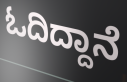
ಓದಿದ್ದಾನೆ